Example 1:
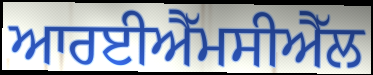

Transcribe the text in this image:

ਆਰਈਐੱਮਸੀਐੱਲ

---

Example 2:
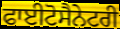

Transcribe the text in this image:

ਫਾਈਟੋਸੈਨੇਟਰੀ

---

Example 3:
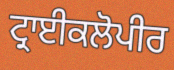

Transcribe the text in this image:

ਟ੍ਰਾਈਕਲੋਪੀਰ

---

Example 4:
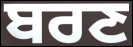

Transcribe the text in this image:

ਬਰਣ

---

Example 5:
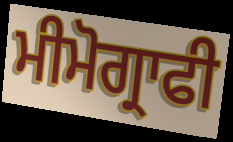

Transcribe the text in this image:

ਮੀਮੋਗ੍ਰਾਫੀ